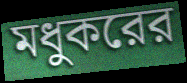
মধুকরের